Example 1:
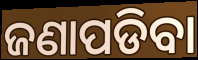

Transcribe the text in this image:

ଜଣାପଡିବା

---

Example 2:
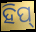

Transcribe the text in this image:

ହିପ୍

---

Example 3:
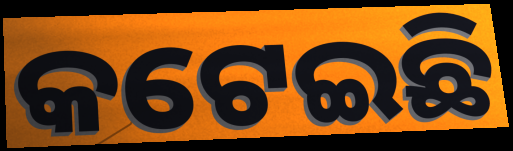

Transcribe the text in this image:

କଟେଇଛି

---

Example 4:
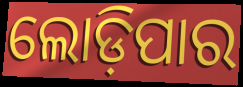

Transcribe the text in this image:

ଲୋଡ଼ିପାର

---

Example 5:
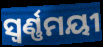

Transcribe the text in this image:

ସ୍ୱର୍ଣ୍ଣମୟୀ